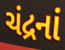
ચંદ્રનાં